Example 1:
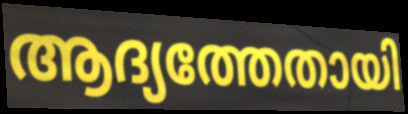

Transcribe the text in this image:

ആദ്യത്തേതായി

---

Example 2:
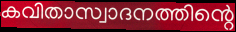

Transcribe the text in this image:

കവിതാസ്വാദനത്തിന്റെ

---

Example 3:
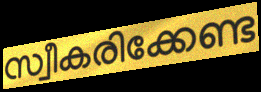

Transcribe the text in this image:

സ്വീകരിക്കേണ്ട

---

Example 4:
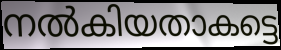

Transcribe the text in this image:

നൽകിയതാകട്ടെ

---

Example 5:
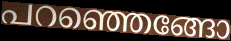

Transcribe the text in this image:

പറഞ്ഞെങ്ങോ